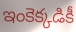
ఇంకెక్కడికీ